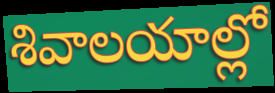
శివాలయాల్లో